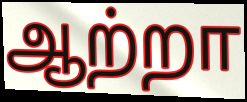
ஆற்றா